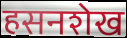
हसनशेख